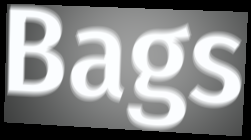
Bags